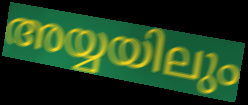
അയ്യയിലും